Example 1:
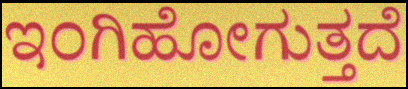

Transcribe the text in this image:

ಇಂಗಿಹೋಗುತ್ತದೆ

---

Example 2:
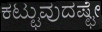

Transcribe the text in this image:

ಕಟ್ಟುವುದಷ್ಟೇ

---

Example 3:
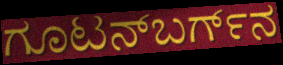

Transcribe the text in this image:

ಗೂಟನ್‌ಬರ್ಗ್‌ನ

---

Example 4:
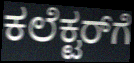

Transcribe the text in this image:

ಕಲೆಕ್ಟರ್‌ಗೆ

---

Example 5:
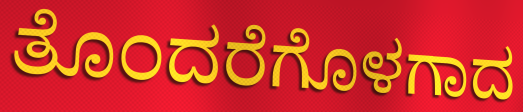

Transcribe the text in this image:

ತೊಂದರೆಗೊಳಗಾದ